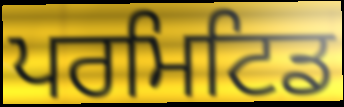
ਪਰਮਿਟਿਡ